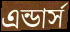
এন্ডার্স